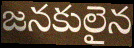
జనకులైన